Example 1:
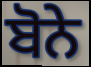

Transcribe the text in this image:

ਬੋਨੇ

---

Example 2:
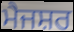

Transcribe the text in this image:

ਮੈਜਸ਼ਰ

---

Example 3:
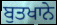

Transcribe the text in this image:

ਬੁਤਖਾਨੇ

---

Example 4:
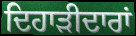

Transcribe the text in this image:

ਦਿਹਾੜੀਦਾਰਾਂ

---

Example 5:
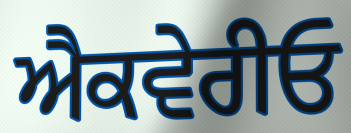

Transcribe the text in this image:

ਐਕਵੇਰੀਓ